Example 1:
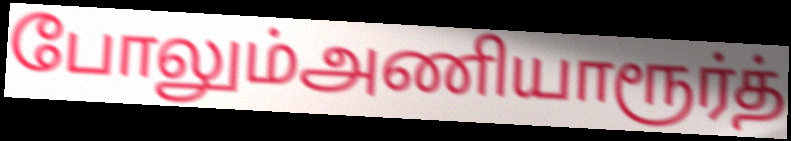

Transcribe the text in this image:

போலும்அணியாரூர்த்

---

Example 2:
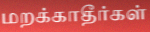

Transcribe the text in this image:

மறக்காதீர்கள்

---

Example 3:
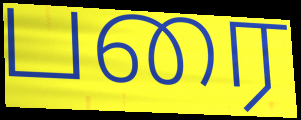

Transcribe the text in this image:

பரை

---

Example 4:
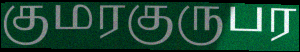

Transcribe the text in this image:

குமரகுருபர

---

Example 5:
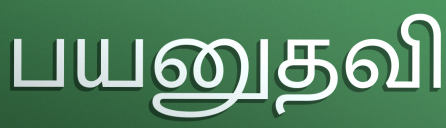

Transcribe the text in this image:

பயனுதவி